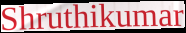
Shruthikumar